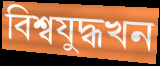
বিশ্বযুদ্ধখন